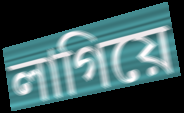
লাগিয়ে